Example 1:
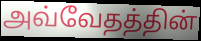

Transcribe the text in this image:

அவ்வேதத்தின்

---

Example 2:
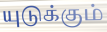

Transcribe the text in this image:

யுடுக்கும்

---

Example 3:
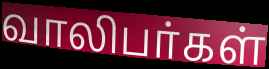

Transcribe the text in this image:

வாலிபர்கள்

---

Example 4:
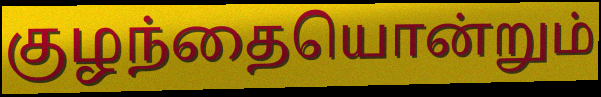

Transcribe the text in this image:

குழந்தையொன்றும்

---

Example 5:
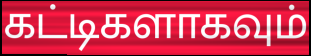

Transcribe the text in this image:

கட்டிகளாகவும்